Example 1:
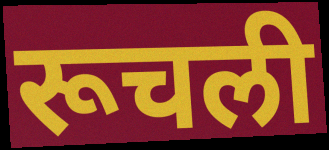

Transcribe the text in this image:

रूचली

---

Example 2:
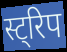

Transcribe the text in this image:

स्ट्रिप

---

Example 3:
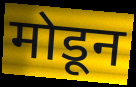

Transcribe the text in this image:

मोडून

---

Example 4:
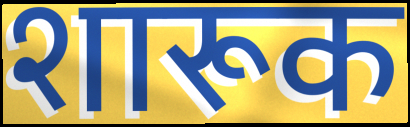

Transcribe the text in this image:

शारूक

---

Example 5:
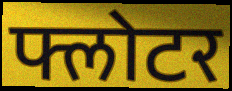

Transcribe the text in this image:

फ्लोटर